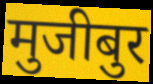
मुजीबुर